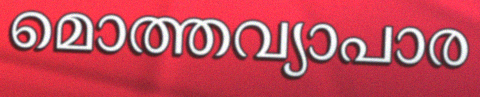
മൊത്തവ്യാപാര